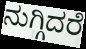
ನುಗ್ಗಿದರೆ